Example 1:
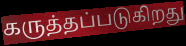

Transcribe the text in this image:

கருத்தப்படுகிறது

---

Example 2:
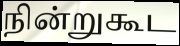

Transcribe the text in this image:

நின்றுகூட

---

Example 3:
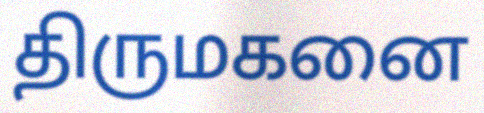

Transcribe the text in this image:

திருமகனை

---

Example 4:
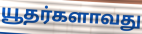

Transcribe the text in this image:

யூதர்களாவது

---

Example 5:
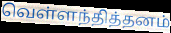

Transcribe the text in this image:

வெள்ளந்தித்தனம்